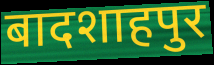
बादशाहपुर